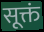
सूक्तं